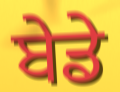
ਬੇਡੇ